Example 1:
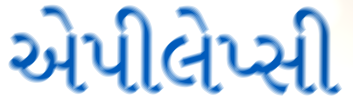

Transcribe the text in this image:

એપીલેપ્સી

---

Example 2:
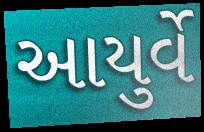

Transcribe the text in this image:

આયુર્વે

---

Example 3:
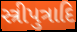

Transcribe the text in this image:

સ્ત્રીપુત્રાદિ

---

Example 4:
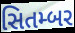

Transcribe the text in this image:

સિતમ્બર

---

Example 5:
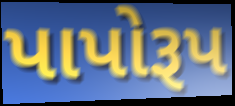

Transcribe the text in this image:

પાપોરૂપ